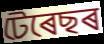
টেৰেছৰ